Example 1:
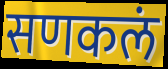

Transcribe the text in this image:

सणकलं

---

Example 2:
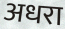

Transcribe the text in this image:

अधरा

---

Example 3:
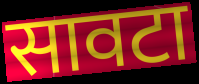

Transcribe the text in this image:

सावटा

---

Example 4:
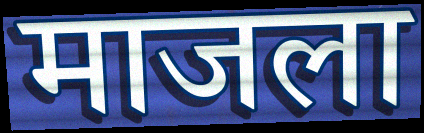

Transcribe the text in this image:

माजला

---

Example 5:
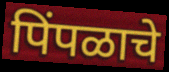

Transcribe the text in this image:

पिंपळाचे